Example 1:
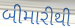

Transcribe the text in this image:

બીમારીથી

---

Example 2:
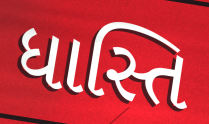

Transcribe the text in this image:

ધાસ્તિ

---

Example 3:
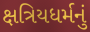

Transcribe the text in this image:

ક્ષત્રિયધર્મનું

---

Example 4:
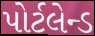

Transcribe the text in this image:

પોર્ટલેન્ડ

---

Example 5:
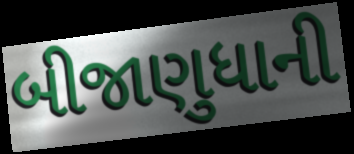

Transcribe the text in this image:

બીજાણુધાની